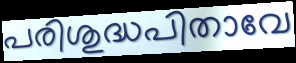
പരിശുദ്ധപിതാവേ